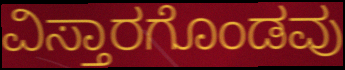
ವಿಸ್ತಾರಗೊಂಡವು